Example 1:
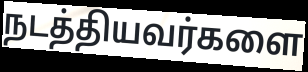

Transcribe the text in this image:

நடத்தியவர்களை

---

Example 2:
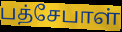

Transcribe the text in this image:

பத்சேபாள்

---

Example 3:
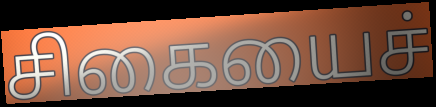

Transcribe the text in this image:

சிகையைச்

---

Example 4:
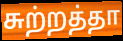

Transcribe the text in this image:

சுற்றத்தா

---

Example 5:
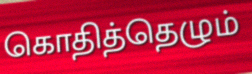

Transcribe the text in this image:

கொதித்தெழும்